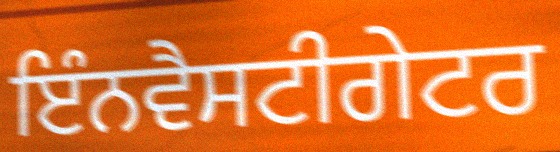
ਇੰਨਵੈਸਟੀਗੇਟਰ